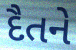
દૈતને